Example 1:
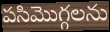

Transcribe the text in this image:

పసిమొగ్గలను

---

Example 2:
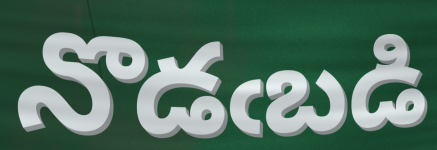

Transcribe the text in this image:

నొడఁబడి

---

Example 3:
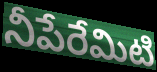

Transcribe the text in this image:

నీపేరేమిటి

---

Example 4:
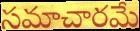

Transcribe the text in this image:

సమాచారమే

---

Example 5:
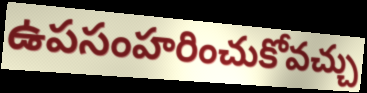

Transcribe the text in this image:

ఉపసంహరించుకోవచ్చు